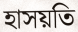
হাসয়তি